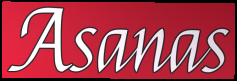
Asanas